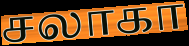
சலாகா